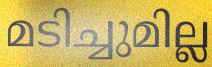
മടിച്ചുമില്ല